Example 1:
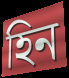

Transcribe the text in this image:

হিন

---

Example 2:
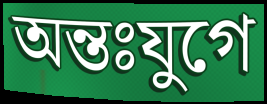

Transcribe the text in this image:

অন্তঃযুগে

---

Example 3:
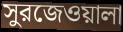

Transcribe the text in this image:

সুরজেওয়ালা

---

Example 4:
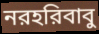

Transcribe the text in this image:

নরহরিবাবু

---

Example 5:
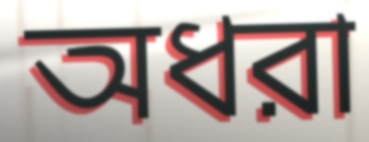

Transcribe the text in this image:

অধরা